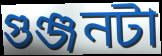
গুঞ্জনটা